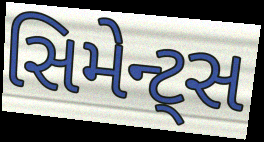
સિમેન્ટ્સ